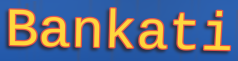
Bankati